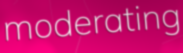
moderating